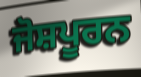
ਜੋਸ਼ਪੂਰਨ